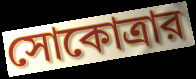
সোকোত্রার